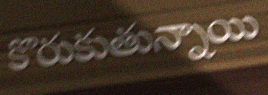
కొరుకుతున్నాయి